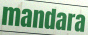
mandara